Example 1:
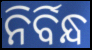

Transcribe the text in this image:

ନିର୍ବିନ୍ଧ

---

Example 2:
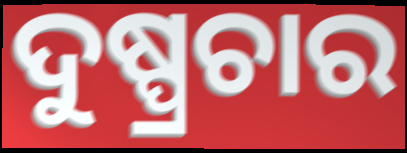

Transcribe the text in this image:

ଦୁଷ୍ପ୍ରଚାର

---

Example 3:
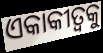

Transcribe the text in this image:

ଏକାକୀତ୍ଵକୁ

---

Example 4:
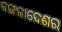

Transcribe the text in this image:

ବଙ୍ଗଳାଦେଶର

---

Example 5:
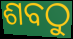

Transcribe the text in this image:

ଶବଠୁ